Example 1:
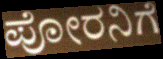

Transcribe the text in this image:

ಪೋರನಿಗೆ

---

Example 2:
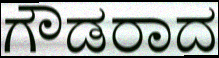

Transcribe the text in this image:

ಗೌಡರಾದ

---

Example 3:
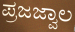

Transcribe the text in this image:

ಪ್ರಜಜ್ವಾಲ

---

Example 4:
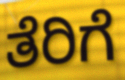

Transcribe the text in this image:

ತೆರಿಗೆ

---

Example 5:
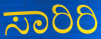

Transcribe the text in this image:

ಸಾರಿರಿ